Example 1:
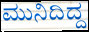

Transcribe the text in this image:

ಮುನಿದಿದ್ದ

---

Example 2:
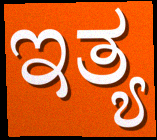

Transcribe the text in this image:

ಇತ್ಯ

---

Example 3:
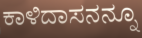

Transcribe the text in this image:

ಕಾಳಿದಾಸನನ್ನೂ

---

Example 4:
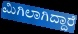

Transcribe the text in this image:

ಮಿಗಿಲಾಗಿದ್ದಾರೆ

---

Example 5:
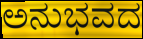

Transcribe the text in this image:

ಅನುಭವದ